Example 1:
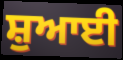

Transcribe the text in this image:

ਸ਼ੁਆਈ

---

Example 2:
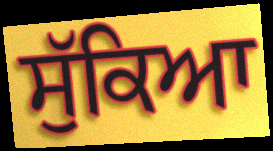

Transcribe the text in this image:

ਸੁੱਕਿਆ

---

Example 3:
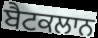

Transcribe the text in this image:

ਬੈਟਕਲਾਨ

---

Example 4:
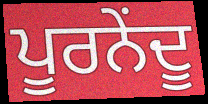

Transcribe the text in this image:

ਪੂਰਨੇਂਦੂ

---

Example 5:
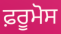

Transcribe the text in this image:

ਫ਼ਰੂਮੋਸ